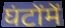
घंटोंमें